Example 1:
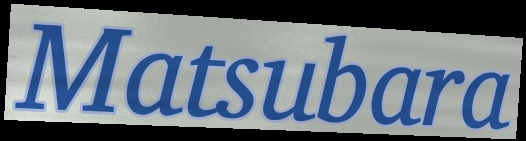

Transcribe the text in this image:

Matsubara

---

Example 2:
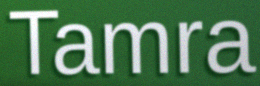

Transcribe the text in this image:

Tamra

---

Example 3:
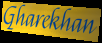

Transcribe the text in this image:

Gharekhan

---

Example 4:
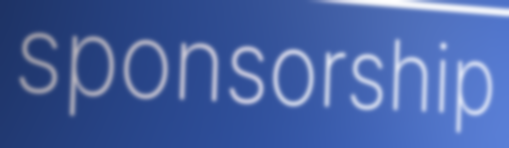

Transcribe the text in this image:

sponsorship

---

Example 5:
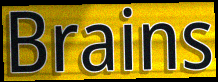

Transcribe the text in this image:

Brains